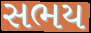
સભય